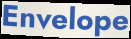
Envelope